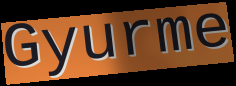
Gyurme